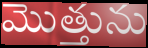
మొత్తును